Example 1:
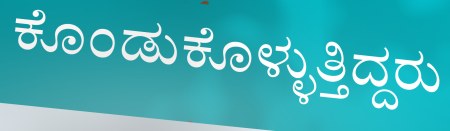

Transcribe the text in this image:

ಕೊಂಡುಕೊಳ್ಳುತ್ತಿದ್ದರು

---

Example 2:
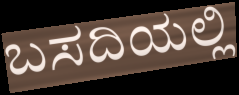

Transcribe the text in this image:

ಬಸದಿಯಲ್ಲಿ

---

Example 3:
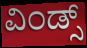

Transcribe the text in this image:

ವಿಂಡ್ಸ್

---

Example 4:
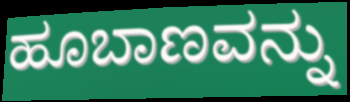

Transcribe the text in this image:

ಹೂಬಾಣವನ್ನು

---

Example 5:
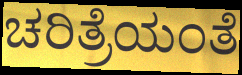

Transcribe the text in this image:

ಚರಿತ್ರೆಯಂತೆ